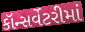
કૉન્સર્વેટરીમાં